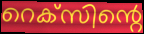
റെക്‌സിന്റെ